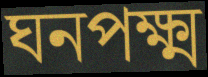
ঘনপক্ষ্ম